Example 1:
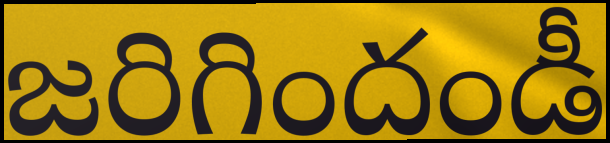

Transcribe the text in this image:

జరిగిందండీ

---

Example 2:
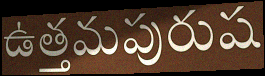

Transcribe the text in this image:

ఉత్తమపురుష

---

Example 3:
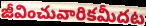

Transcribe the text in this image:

జీవించువారికమీదట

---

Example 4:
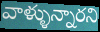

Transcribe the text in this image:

వాళ్ళున్నారని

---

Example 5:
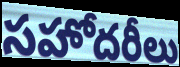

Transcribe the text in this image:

సహోదరీలు